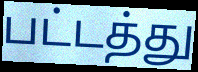
பட்டத்து